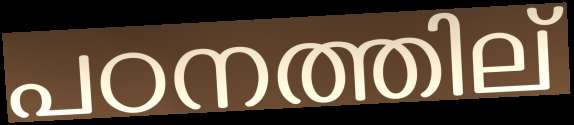
പഠനത്തില്